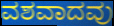
ವಶವಾದವು